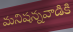
మనిషన్నవాడికి